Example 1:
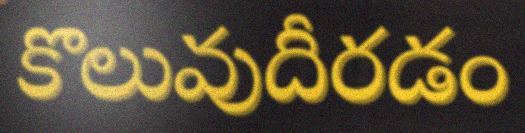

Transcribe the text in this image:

కొలువుదీరడం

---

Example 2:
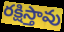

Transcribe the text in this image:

రక్షిస్తావు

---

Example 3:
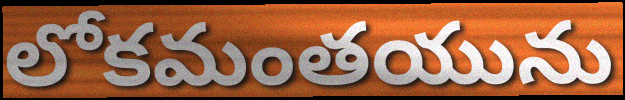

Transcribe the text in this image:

లోకమంతయును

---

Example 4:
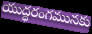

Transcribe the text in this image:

యుద్ధరంగమునకు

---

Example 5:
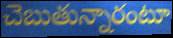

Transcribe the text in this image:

చెబుతున్నారంటూ